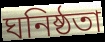
ঘনিষ্ঠতা